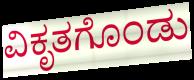
ವಿಕೃತಗೊಂಡು